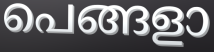
പെങ്ങളാ